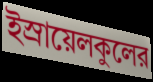
ইস্রায়েলকুলের